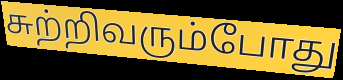
சுற்றிவரும்போது